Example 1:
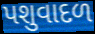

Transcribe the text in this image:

પશુવાદળ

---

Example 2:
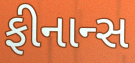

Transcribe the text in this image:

ફીનાન્સ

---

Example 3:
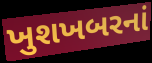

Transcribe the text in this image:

ખુશખબરનાં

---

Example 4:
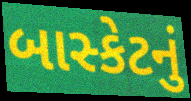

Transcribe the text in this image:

બાસ્કેટનું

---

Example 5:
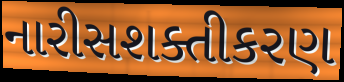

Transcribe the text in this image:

નારીસશક્તીકરણ